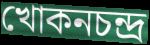
খোকনচন্দ্র